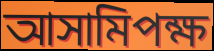
আসামিপক্ষ